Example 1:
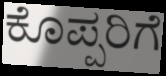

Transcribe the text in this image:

ಕೊಪ್ಪರಿಗೆ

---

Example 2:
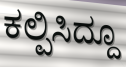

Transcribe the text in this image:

ಕಲ್ಪಿಸಿದ್ದೂ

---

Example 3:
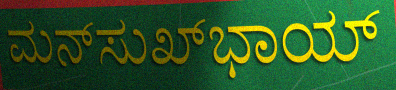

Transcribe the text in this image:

ಮನ್‌ಸುಖ್‌ಭಾಯ್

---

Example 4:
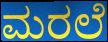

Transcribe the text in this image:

ಮರಲೆ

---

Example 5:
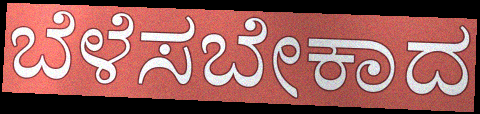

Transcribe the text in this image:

ಬೆಳೆಸಬೇಕಾದ